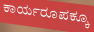
ಕಾರ್ಯರೂಪಕ್ಕೂ